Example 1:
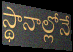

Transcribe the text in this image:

స్థానాల్లోనే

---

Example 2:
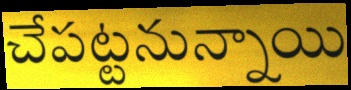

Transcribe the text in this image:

చేపట్టనున్నాయి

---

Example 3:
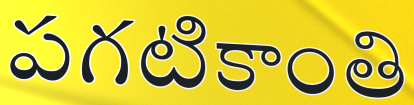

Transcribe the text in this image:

పగటికాంతి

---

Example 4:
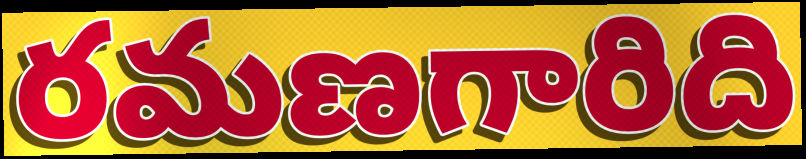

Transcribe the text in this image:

రమణగారిది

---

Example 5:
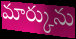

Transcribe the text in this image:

మార్కును